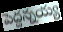
పెద్దన్నయ్య